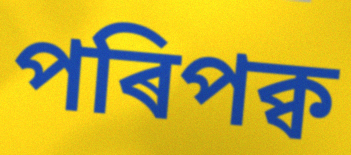
পৰিপক্ব